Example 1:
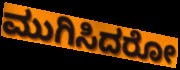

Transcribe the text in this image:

ಮುಗಿಸಿದರೋ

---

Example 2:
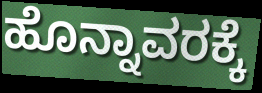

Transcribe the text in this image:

ಹೊನ್ನಾವರಕ್ಕೆ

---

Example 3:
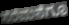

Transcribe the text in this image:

ಸೆರೆಮನೆಗೂ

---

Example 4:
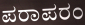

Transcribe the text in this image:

ಪರಾಪರಂ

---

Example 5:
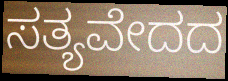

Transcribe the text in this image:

ಸತ್ಯವೇದದ